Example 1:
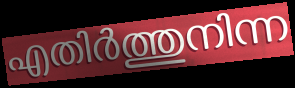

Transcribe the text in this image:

എതിർത്തുനിന്ന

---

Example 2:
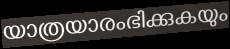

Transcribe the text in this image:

യാത്രയാരംഭിക്കുകയും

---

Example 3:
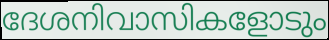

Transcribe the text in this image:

ദേശനിവാസികളോടും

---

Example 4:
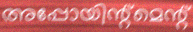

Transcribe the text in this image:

അപ്പോയിന്റ്മെന്റ്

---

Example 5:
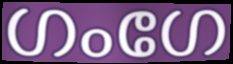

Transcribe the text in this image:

ഗംഗേ